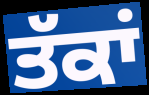
ਤੱਕਾਂ